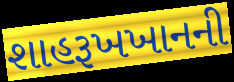
શાહરૂખખાનની